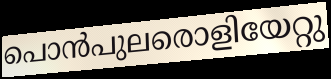
പൊൻപുലരൊളിയേറ്റു